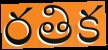
రతిక